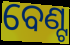
ବେଣ୍ଟ